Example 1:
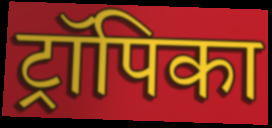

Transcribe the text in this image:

ट्रॉपिका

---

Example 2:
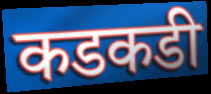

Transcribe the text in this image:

कडकडी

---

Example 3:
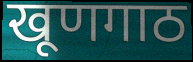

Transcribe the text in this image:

खूणगाठ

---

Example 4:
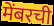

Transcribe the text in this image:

मेंबरची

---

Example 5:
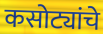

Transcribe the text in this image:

कसोट्यांचे